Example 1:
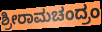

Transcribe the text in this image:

ಶ್ರೀರಾಮಚಂದ್ರಂ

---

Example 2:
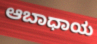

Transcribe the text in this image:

ಆಬಾಧಾಯ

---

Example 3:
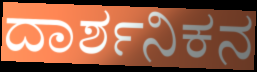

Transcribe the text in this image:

ದಾರ್ಶನಿಕನ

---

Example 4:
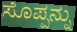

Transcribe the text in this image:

ಸೊಪ್ಪನ್ನು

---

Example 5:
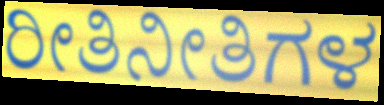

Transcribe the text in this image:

ರೀತಿನೀತಿಗಳ